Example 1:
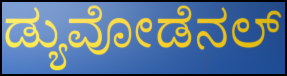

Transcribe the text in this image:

ಡ್ಯುವೋಡೆನಲ್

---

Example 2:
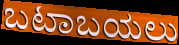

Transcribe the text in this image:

ಬಟಾಬಯಲು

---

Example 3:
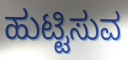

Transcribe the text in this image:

ಹುಟ್ಟಿಸುವ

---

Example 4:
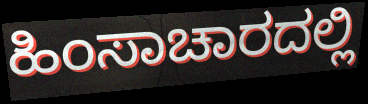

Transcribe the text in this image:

ಹಿಂಸಾಚಾರದಲ್ಲಿ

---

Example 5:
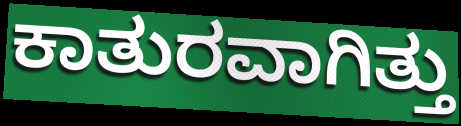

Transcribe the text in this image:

ಕಾತುರವಾಗಿತ್ತು